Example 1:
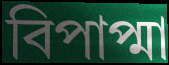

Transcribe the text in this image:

বিপাপ্মা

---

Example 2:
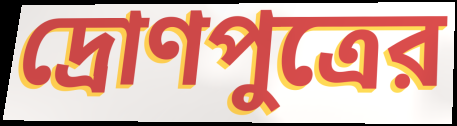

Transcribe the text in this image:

দ্রোণপুত্রের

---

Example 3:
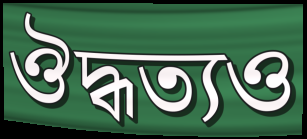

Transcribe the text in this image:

ঔদ্ধত্যও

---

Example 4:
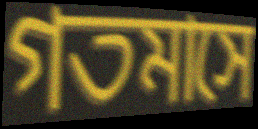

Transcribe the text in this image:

গতমাসে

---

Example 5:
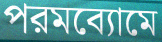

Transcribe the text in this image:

পরমব্যোমে